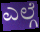
ಎಲ್ಗೆ